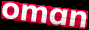
oman